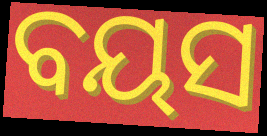
ବୟସ